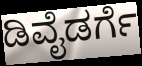
ಡಿವೈಡರ್ಗೆ